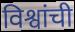
विश्वांची